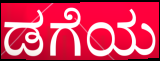
ಡಗೆಯ